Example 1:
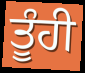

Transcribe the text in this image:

ਤੂੰਹੀ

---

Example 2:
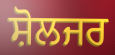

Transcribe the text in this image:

ਸ਼ੋਲਜਰ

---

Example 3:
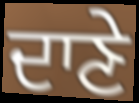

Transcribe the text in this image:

ਦਾਣੇ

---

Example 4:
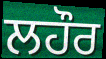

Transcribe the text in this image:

ਲਹੌਰ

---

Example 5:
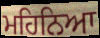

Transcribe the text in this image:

ਮਹਿਨਿਆ